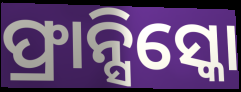
ଫ୍ରାନ୍ସିସ୍କୋ